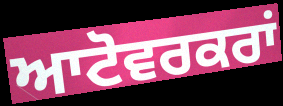
ਆਟੋਵਰਕਰਾਂ